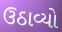
ઉઠાવ્યો